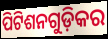
ପିଟିଶନଗୁଡ଼ିକର